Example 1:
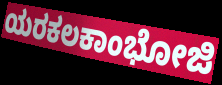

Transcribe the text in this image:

ಯರಕಲಕಾಂಭೋಜಿ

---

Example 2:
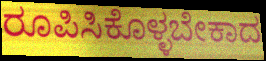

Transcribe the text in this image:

ರೂಪಿಸಿಕೊಳ್ಳಬೇಕಾದ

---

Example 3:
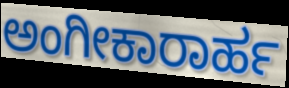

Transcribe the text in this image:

ಅಂಗೀಕಾರಾರ್ಹ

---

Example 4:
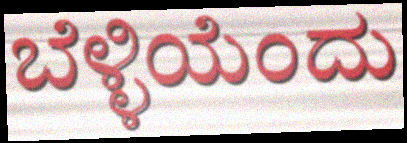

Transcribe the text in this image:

ಬೆಳ್ಳಿಯೆಂದು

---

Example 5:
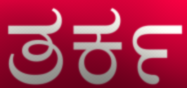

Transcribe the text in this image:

ತರ್ಕ